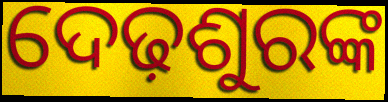
ଦେଢ଼ଶୁରଙ୍କ